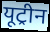
यूट्रीन